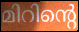
മിറിന്റെ